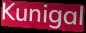
Kunigal